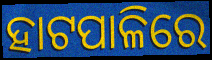
ହାଟପାଳିରେ